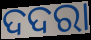
ଦଦରା